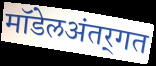
मॉडेलअंतर्गत